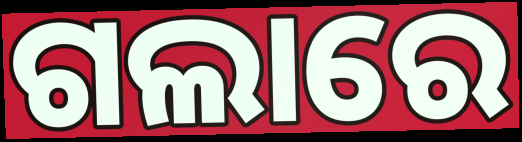
ଗଲାରେ